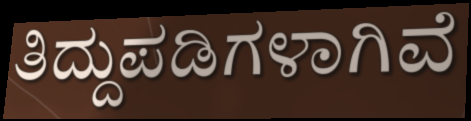
ತಿದ್ದುಪಡಿಗಳಾಗಿವೆ